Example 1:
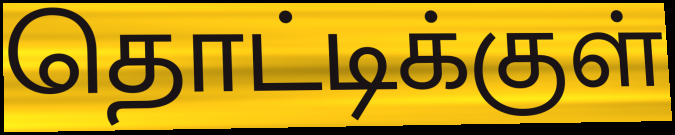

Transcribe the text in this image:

தொட்டிக்குள்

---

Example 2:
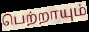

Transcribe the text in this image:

பெற்றாயும்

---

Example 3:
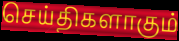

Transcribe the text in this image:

செய்திகளாகும்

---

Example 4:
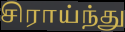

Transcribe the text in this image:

சிராய்ந்து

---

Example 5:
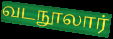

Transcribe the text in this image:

வடநூலார்